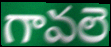
గావలె